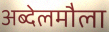
अब्देलमौला